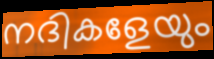
നദികളേയും